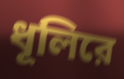
ধূলিরে